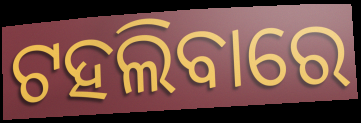
ଟହଲିବାରେ